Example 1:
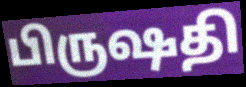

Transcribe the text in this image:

பிருஷதி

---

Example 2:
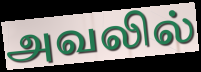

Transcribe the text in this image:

அவலில்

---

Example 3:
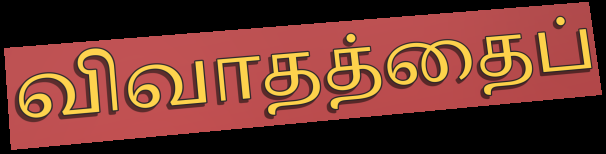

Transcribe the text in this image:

விவாதத்தைப்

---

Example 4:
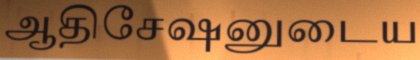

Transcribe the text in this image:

ஆதிசேஷனுடைய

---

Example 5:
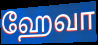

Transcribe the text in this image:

ஹேவா